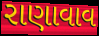
રાણાવાવ